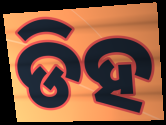
ଡିହ